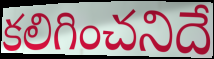
కలిగించనిదే